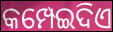
କମ୍ପେଇଦିଏ